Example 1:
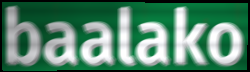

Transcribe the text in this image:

baalako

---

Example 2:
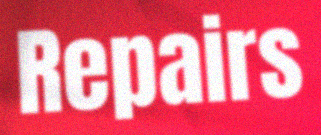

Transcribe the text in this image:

Repairs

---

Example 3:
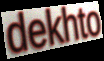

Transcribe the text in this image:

dekhto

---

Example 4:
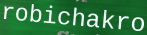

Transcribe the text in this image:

robichakro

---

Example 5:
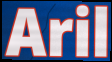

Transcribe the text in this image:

Aril